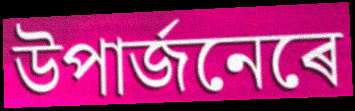
উপাৰ্জনেৰে